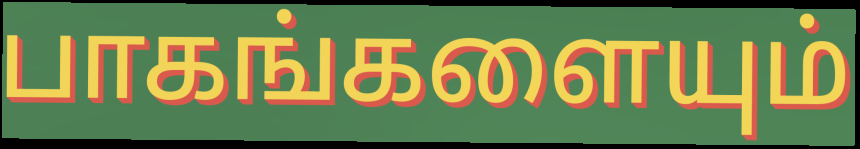
பாகங்களையும்